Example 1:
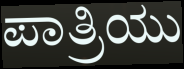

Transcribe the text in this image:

ಪಾತ್ರಿಯು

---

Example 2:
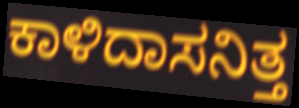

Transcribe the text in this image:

ಕಾಳಿದಾಸನಿತ್ತ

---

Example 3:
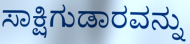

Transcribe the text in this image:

ಸಾಕ್ಷಿಗುಡಾರವನ್ನು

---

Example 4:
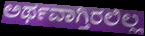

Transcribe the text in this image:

ಅರ್ಥವಾಗ್ತಿರಲಿಲ್ಲ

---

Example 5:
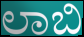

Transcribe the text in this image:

ಲಾಬಿ